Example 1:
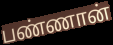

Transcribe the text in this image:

பண்ணான்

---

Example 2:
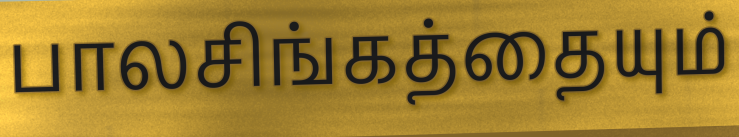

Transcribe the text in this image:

பாலசிங்கத்தையும்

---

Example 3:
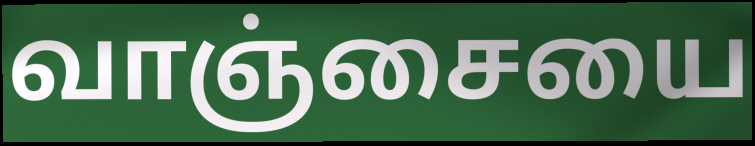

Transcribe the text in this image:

வாஞ்சையை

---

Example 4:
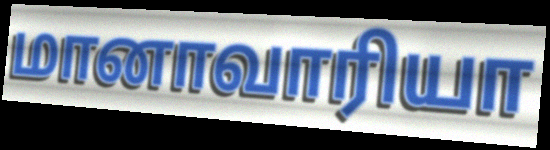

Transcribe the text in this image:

மானாவாரியா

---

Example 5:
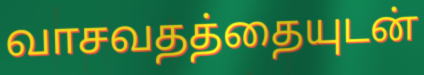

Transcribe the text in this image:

வாசவதத்தையுடன்